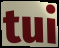
tui